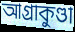
আগ্রাকুণ্ডা